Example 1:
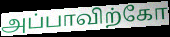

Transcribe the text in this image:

அப்பாவிற்கோ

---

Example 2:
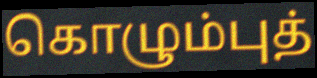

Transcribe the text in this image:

கொழும்புத்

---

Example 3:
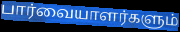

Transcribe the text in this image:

பார்வையாளர்களும்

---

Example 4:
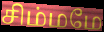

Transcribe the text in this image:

சிம்மமே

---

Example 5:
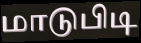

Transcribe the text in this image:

மாடுபிடி